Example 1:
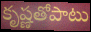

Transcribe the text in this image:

కృష్ణతోపాటు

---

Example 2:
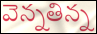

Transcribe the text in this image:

వెన్నతిన్న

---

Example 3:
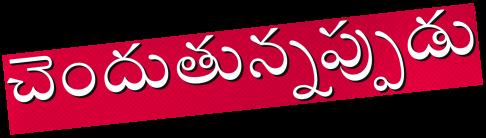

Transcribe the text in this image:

చెందుతున్నప్పుడు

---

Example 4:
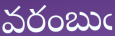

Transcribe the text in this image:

వరంబుఁ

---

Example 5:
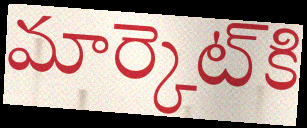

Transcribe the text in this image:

మార్కెట్‌కి